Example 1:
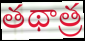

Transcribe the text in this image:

తథాత్ర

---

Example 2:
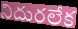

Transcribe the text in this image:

నిదురలేక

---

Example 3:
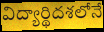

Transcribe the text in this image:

విద్యార్థిదశలోనే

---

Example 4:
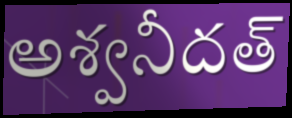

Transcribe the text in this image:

అశ్వనీదత్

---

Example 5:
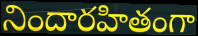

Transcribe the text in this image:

నిందారహితంగా